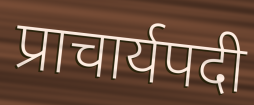
प्राचार्यपदी